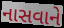
નાસવાને